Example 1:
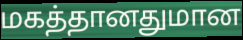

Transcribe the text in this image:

மகத்தானதுமான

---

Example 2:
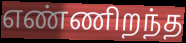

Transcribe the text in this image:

எண்ணிறந்த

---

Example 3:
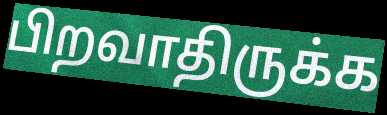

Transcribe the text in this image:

பிறவாதிருக்க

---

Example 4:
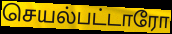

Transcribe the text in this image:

செயல்பட்டாரோ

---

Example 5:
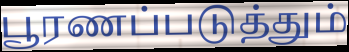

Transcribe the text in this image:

பூரணப்படுத்தும்